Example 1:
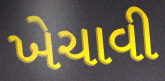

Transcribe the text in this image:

ખેચાવી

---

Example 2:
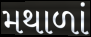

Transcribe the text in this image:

મથાળાં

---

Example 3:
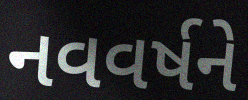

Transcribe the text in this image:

નવવર્ષને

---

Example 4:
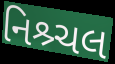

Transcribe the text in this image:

નિશ્ર્ચલ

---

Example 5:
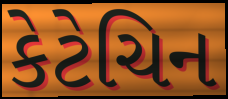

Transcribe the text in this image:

કેટેચિન